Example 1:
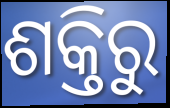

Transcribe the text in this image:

ଶକ୍ତିରୁ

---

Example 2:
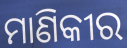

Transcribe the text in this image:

ମାଣିକୀର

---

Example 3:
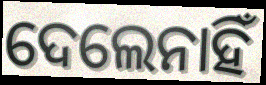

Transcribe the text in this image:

ଦେଲେନାହିଁ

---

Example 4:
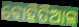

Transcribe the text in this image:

ବୋହିତିଆଳ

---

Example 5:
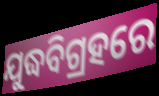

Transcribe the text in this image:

ଯୁଦ୍ଧବିଗ୍ରହରେ